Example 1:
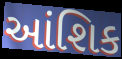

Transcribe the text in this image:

આંશિક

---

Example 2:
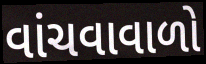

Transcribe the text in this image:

વાંચવાવાળો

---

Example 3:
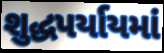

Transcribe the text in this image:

શુદ્ધપર્યાયમાં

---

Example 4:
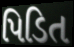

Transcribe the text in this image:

પિડિત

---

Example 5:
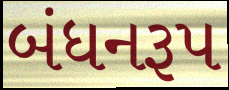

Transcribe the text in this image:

બંધનરૂપ